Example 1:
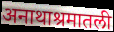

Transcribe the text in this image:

अनाथाश्रमातली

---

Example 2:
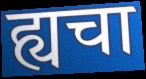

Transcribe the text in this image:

ह्यचा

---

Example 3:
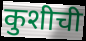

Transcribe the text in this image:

कुशीची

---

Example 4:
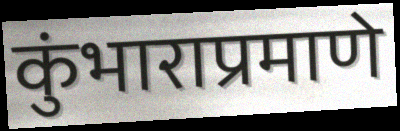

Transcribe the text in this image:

कुंभाराप्रमाणे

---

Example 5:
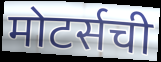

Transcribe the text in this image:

मोटर्सची